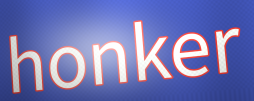
honker